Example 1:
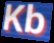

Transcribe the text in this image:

Kb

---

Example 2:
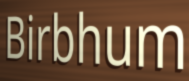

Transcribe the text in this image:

Birbhum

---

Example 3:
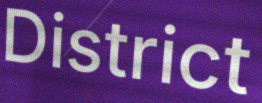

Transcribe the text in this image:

District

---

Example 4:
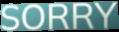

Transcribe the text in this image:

SORRY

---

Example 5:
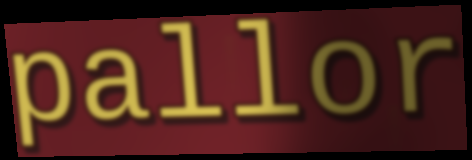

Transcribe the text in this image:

pallor